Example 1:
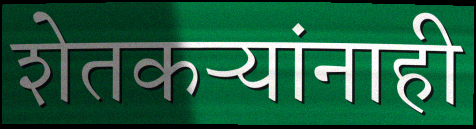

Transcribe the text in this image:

शेतकऱ्यांनाही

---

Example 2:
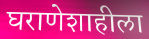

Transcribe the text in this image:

घराणेशाहीला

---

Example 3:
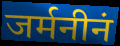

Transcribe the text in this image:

जर्मनीनं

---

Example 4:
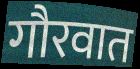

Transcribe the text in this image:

गौरवात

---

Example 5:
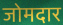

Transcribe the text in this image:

जोमदार